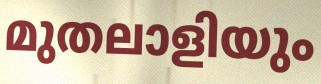
മുതലാളിയും